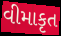
વીમાકૃત